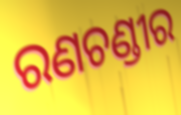
ରଣଚଣ୍ଡୀର